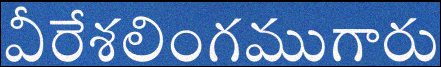
వీరేశలింగముగారు